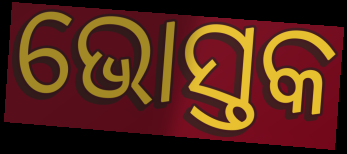
ଭୋସ୍ତକ